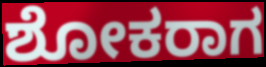
ಶೋಕರಾಗ